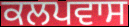
ਕਲਪਵਾਸ